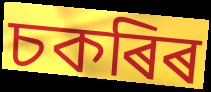
চকৰিৰ